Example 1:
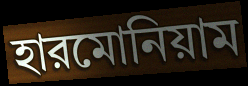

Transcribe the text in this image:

হারমোনিয়াম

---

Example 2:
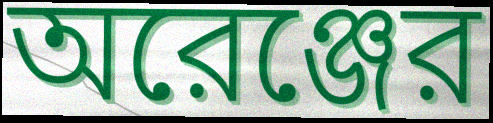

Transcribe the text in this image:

অরেঞ্জের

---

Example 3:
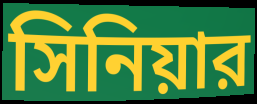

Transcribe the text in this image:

সিনিয়ার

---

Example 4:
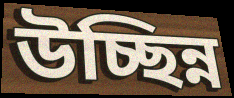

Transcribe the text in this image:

উচ্ছিন্ন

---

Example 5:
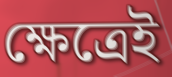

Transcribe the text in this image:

ক্ষেত্রেই